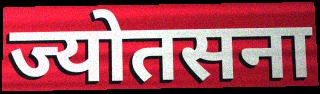
ज्योतसना